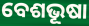
ବେଶଭୂଷା